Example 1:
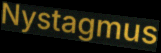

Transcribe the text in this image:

Nystagmus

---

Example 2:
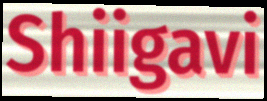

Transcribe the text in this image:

Shiigavi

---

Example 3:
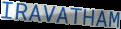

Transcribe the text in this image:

IRAVATHAM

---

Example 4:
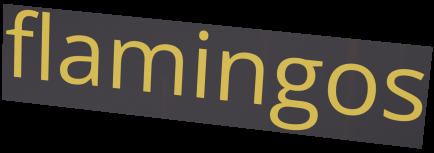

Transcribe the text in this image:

flamingos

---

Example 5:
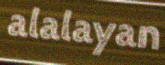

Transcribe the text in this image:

alalayan